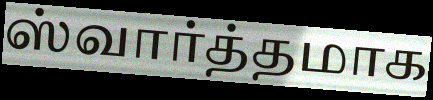
ஸ்வார்த்தமாக